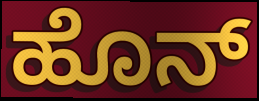
ಹೊನ್